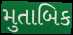
મુતાબિક